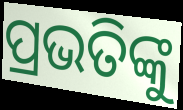
ପ୍ରଭତିଙ୍କୁ